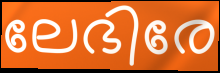
ലേഭിരേ